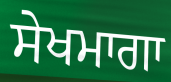
ਸੇਖਮਾਗਾ